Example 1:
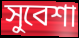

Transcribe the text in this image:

সুবেশা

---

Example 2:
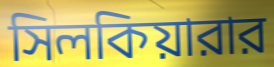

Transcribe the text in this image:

সিলকিয়ারার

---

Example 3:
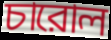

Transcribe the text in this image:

চারোল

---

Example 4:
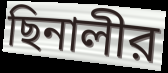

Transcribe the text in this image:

ছিনালীর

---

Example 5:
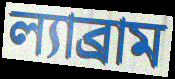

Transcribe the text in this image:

ল্যাব্রাম